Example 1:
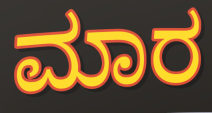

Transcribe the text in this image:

ಮಾರ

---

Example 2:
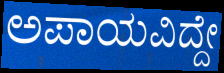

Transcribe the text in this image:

ಅಪಾಯವಿದ್ದೇ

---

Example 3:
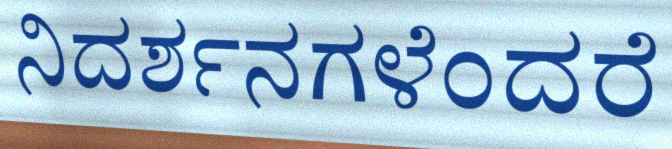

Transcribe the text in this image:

ನಿದರ್ಶನಗಳೆಂದರೆ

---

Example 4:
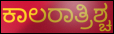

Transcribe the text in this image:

ಕಾಲರಾತ್ರಿಶ್ಚ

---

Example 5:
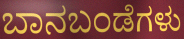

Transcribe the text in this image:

ಬಾನಬಂಡೆಗಳು